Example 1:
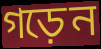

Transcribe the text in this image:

গড়েন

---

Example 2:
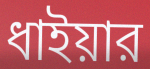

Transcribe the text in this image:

ধাইয়ার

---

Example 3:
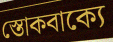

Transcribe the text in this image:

স্তোকবাক্যে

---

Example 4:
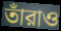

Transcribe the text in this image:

তাঁরাও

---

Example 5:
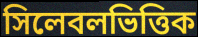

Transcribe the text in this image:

সিলেবলভিত্তিক